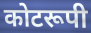
कोटरूपी